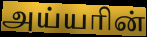
அய்யரின்